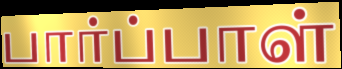
பார்ப்பாள்